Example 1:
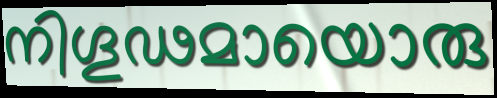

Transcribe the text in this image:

നിഗൂഢമായൊരു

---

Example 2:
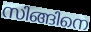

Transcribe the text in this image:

സിങ്ങിനെ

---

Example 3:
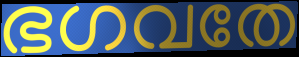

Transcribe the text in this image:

ഭഗവതേ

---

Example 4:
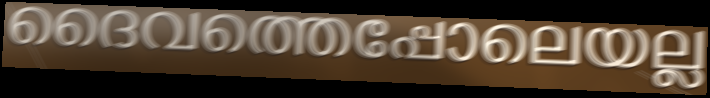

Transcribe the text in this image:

ദൈവത്തെപ്പോലെയല്ല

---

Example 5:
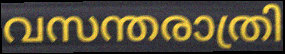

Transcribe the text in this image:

വസന്തരാത്രി